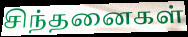
சிந்தனைகள்